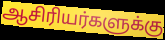
ஆசிரியர்களுக்கு